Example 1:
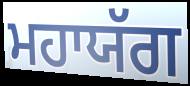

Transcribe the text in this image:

ਮਹਾਯੱਗ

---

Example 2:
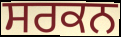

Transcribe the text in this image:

ਸਰਕਨ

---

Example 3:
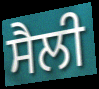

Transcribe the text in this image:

ਸੈਲੀ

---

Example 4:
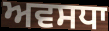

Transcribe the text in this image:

ਅਵਸਧਾ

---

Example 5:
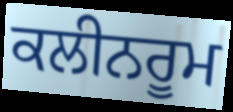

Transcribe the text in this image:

ਕਲੀਨਰੂਮ